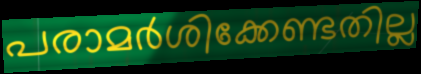
പരാമർശിക്കേണ്ടതില്ല